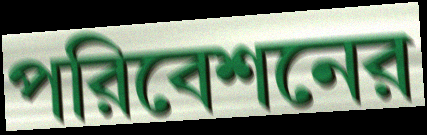
পরিবেশনের